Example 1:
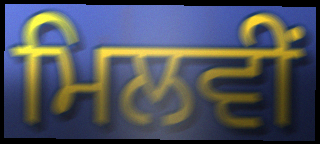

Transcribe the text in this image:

ਮਿਲਵੀਂ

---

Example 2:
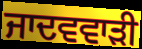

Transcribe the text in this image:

ਜਾਦਵਵਾੜੀ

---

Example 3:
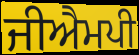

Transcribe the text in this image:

ਜੀਐਮਪੀ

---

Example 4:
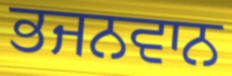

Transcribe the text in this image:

ਭਜਨਵਾਨ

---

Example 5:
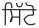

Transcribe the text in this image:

ਸਿੱਟੋ